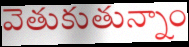
వెతుకుతున్నాం